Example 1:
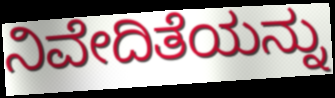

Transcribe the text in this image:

ನಿವೇದಿತೆಯನ್ನು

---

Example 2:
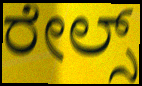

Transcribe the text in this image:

ರೇಲ್ಸ್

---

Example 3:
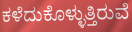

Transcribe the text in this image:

ಕಳೆದುಕೊಳ್ಳುತ್ತಿರುವೆ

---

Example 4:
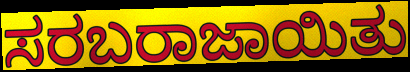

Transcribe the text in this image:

ಸರಬರಾಜಾಯಿತು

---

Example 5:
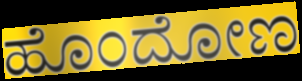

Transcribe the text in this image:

ಹೊಂದೋಣ